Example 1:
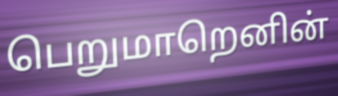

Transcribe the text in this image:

பெறுமாறெனின்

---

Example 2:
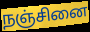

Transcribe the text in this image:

நஞ்சினை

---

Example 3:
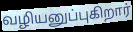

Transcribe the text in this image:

வழியனுப்புகிறார்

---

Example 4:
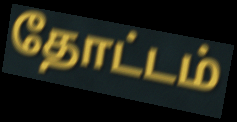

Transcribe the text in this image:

தோட்டம்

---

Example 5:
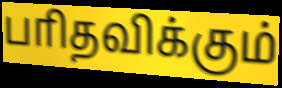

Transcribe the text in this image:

பரிதவிக்கும்